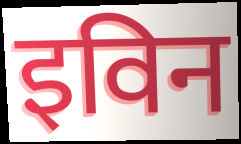
इविन